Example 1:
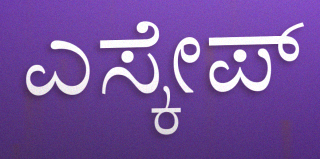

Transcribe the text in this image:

ಎಸ್ಕೇಪ್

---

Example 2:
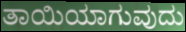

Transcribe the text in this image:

ತಾಯಿಯಾಗುವುದು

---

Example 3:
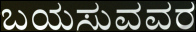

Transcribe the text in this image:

ಬಯಸುವವರ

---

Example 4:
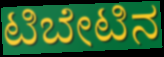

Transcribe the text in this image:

ಟಿಬೇಟಿನ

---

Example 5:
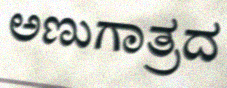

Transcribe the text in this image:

ಅಣುಗಾತ್ರದ